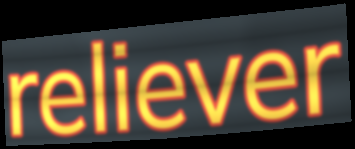
reliever